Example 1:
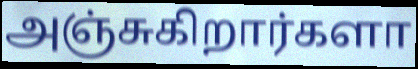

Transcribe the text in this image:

அஞ்சுகிறார்களா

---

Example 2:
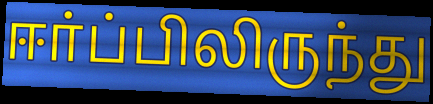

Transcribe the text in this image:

ஈர்ப்பிலிருந்து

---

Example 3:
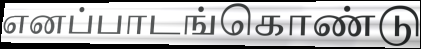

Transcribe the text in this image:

எனப்பாடங்கொண்டு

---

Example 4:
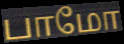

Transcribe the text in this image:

பாமோ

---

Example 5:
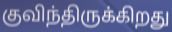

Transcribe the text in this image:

குவிந்திருக்கிறது